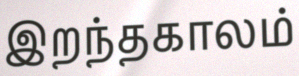
இறந்தகாலம்